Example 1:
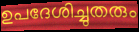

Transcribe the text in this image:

ഉപദേശിച്ചുതരും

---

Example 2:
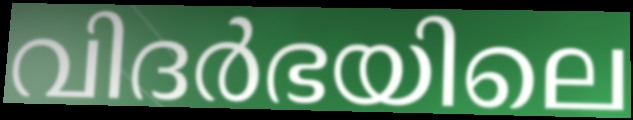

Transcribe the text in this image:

വിദർഭയിലെ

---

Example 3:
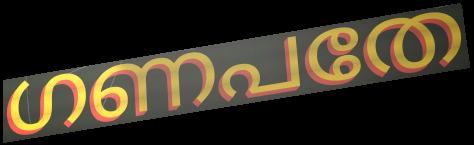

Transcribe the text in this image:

ഗണപതേ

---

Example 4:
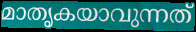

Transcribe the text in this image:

മാതൃകയാവുന്നത്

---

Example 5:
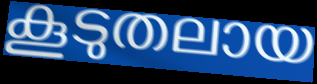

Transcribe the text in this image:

കൂടുതലായ